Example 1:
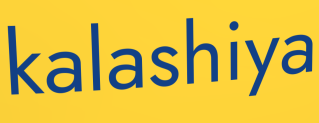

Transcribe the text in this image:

kalashiya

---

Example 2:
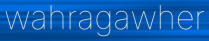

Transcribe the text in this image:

wahragawher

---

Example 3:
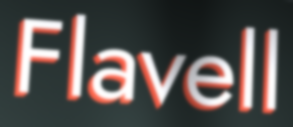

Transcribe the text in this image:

Flavell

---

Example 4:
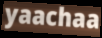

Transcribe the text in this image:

yaachaa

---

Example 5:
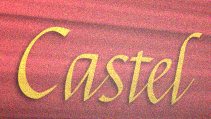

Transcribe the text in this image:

Castel